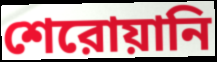
শেরোয়ানি